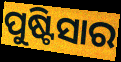
ପୁଷ୍ଟିସାର